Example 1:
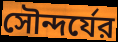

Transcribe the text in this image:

সৌন্দর্যের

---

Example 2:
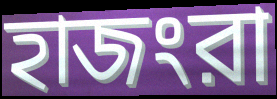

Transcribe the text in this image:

হাজংরা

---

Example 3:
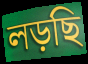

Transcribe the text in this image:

লড়ছি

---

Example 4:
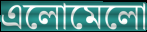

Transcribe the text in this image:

এলোমেলো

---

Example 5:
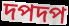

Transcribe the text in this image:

দপদপ